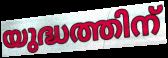
യുദ്ധത്തിന്